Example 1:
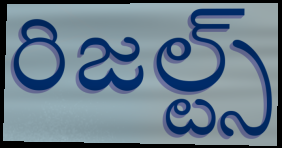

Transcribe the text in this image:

రిజల్ట్స్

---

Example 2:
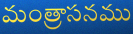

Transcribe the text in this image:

మంత్రాసనము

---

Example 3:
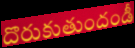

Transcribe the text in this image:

దొరుకుతుందండీ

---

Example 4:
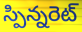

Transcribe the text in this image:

స్పిన్నరెట్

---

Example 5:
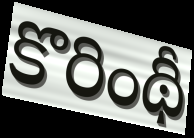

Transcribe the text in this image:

కొరింథీ